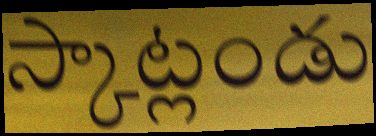
స్కాట్లండు